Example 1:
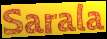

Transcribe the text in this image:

Sarala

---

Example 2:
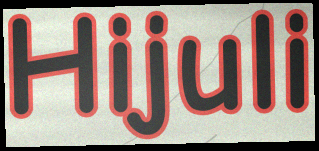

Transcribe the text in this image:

Hijuli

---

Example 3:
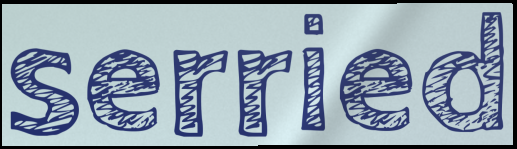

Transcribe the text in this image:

serried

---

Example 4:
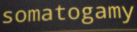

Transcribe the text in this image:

somatogamy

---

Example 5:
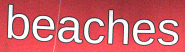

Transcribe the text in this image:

beaches